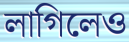
লাগিলেও